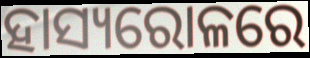
ହାସ୍ୟରୋଳରେ